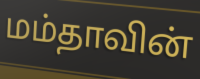
மம்தாவின்